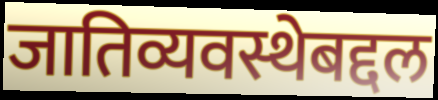
जातिव्यवस्थेबद्दल